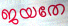
ജയതേ